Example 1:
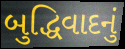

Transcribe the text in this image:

બુદ્ધિવાદનું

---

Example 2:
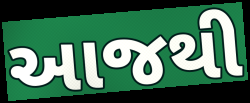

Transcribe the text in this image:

આજથી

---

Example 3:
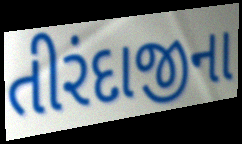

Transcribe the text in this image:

તીરંદાજીના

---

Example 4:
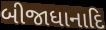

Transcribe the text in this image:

બીજાધાનાદિ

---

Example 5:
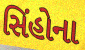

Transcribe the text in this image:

સિંહોના